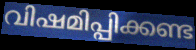
വിഷമിപ്പിക്കണ്ട